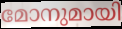
മോനുമായി